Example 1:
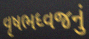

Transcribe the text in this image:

વૃષભધ્વજનું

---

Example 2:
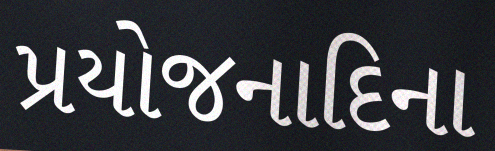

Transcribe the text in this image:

પ્રયોજનાદિના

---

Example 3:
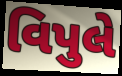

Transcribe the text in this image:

વિપુલે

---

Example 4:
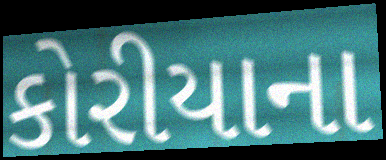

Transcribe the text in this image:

કોરીયાના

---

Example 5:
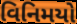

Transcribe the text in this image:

વિનિમયો